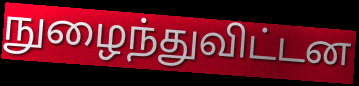
நுழைந்துவிட்டன